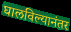
घालविल्यानंतर